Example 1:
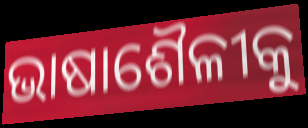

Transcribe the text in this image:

ଭାଷାଶୈଳୀକୁ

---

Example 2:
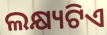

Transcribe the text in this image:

ଲକ୍ଷ୍ୟଟିଏ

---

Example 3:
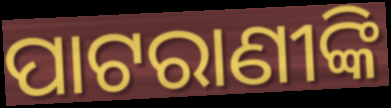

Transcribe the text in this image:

ପାଟରାଣୀଙ୍କି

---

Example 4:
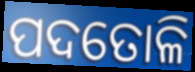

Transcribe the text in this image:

ପଦତୋଳି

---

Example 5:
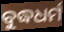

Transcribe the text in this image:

ବୁଦ୍ଧଧର୍ମ